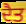
ਦੈਤ